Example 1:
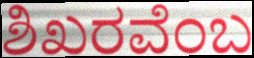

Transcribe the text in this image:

ಶಿಖರವೆಂಬ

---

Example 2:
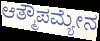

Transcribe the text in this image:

ಆತ್ಮೌಪಮ್ಯೇನ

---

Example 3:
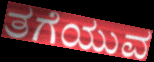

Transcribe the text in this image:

ತಗೆಯುವ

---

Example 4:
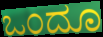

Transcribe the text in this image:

ಒಂದೂ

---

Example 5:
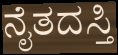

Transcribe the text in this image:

ನೈತದಸ್ತಿ